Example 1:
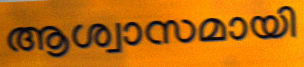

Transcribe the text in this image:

ആശ്വാസമായി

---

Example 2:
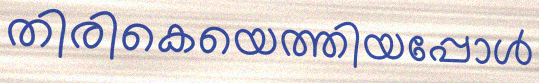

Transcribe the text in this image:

തിരികെയെത്തിയപ്പോൾ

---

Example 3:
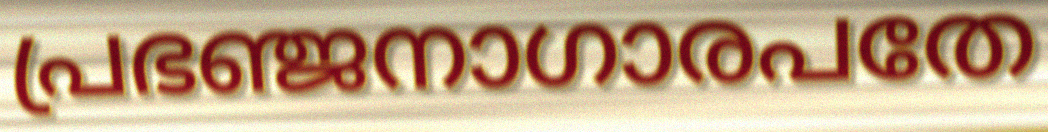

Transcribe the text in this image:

പ്രഭഞ്ജനാഗാരപതേ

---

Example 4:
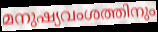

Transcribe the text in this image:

മനുഷ്യവംശത്തിനും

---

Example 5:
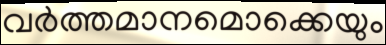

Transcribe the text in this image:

വർത്തമാനമൊക്കെയും